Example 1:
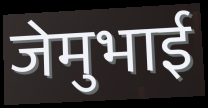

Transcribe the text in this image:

जेमुभाई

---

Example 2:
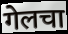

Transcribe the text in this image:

गेलचा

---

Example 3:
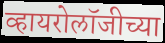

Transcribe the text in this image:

व्हायरोलॉजीच्या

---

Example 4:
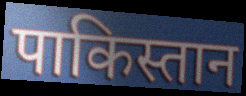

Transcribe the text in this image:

पाकिस्तान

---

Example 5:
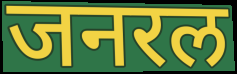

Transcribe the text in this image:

जनरल